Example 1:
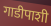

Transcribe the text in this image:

गाडीपाशी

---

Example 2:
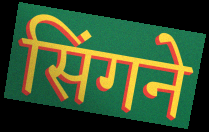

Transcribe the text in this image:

सिंगने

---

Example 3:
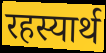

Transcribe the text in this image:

रहस्यार्थ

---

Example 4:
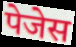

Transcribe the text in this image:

पेजेस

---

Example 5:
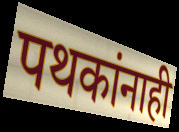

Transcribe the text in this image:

पथकांनाही